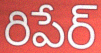
రిపేర్